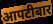
आपटीबार